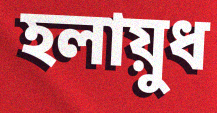
হলায়ুধ